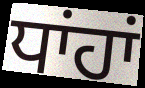
ਧਾਂਹਾਂ